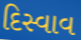
દિસ્વાવ